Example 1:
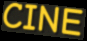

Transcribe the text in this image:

CINE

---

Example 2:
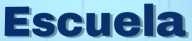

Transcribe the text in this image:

Escuela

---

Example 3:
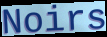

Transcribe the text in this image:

Noirs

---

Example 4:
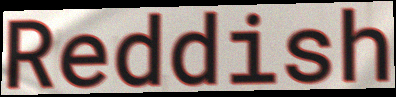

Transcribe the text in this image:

Reddish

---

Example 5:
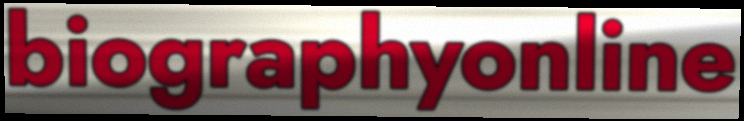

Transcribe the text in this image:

biographyonline